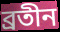
ব্রতীন